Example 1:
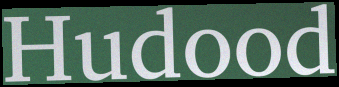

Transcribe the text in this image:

Hudood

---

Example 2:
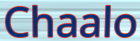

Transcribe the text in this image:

Chaalo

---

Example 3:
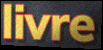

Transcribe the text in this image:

livre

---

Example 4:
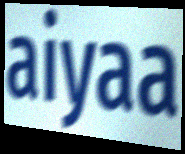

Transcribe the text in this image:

aiyaa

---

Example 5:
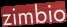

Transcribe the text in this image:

zimbio